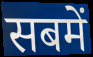
सबमें